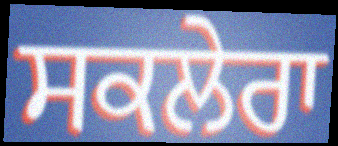
ਸਕਲੇਰਾ